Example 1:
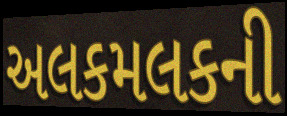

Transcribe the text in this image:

અલકમલકની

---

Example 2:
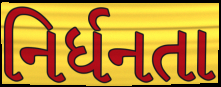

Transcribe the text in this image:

નિર્ધનતા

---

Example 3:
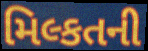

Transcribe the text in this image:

મિલ્કતની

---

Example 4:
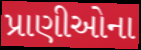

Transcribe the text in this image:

પ્રાણીઓના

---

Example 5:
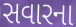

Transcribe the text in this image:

સવારના